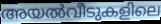
അയൽവീടുകളിലെ